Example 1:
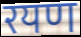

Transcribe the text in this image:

रयण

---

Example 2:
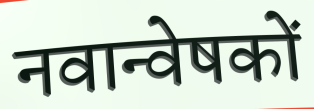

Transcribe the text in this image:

नवान्वेषकों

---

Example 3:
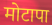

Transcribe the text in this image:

मोटापा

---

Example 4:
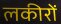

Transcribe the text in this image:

लकीरों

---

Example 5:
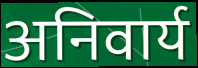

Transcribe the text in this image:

अनिवार्य